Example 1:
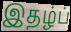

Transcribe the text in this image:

இதழ்ப்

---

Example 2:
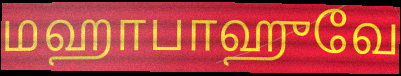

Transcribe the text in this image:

மஹாபாஹுவே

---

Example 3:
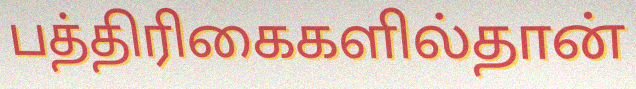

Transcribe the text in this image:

பத்திரிகைகளில்தான்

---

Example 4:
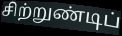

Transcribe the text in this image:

சிற்றுண்டிப்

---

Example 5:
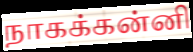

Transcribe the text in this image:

நாகக்கன்னி